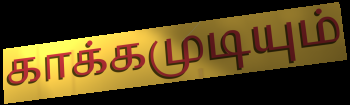
காக்கமுடியும்